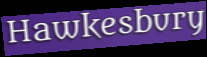
Hawkesbury